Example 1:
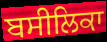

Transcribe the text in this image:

ਬਸੀਲਿਕਾ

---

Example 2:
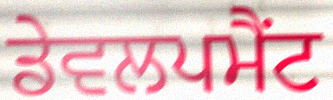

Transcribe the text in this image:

ਡੇਵਲਪਮੈਂਟ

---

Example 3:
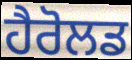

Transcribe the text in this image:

ਹੈਰੋਲਡ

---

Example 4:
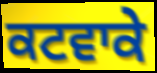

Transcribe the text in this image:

ਕਟਵਾਕੇ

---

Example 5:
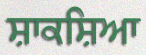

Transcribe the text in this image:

ਸ਼ਾਕਸ਼ਿਆ